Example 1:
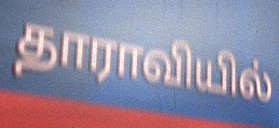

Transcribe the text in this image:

தாராவியில்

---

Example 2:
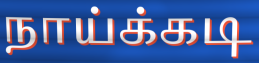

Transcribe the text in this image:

நாய்க்கடி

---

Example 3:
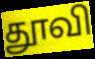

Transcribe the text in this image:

தூவி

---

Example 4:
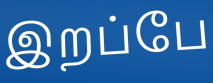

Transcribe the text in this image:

இறப்பே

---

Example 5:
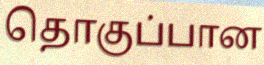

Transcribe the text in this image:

தொகுப்பான